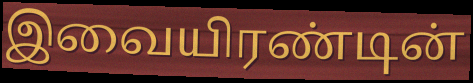
இவையிரண்டின்